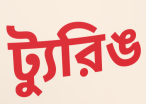
ট্যুরিঙ